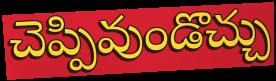
చెప్పివుండొచ్చు